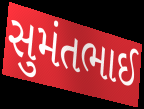
સુમંતભાઈ